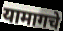
यामागचे